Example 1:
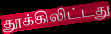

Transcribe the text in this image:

தூக்கிலிட்டது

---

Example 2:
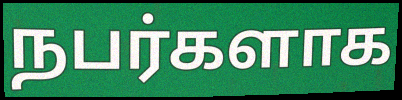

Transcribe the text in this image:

நபர்களாக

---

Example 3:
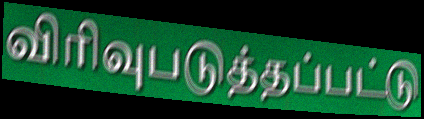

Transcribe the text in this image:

விரிவுபடுத்தப்பட்டு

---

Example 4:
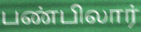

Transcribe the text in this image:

பண்பிலார்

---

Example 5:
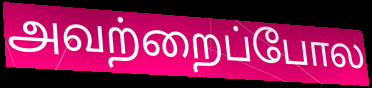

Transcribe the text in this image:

அவற்றைப்போல